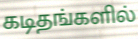
கடிதங்களில்